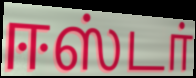
ஈஸ்டர்